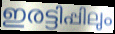
ഇരട്ടിപ്പിലും